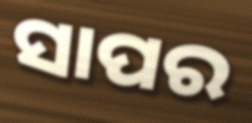
ସାପର